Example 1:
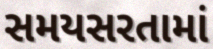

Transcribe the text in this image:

સમયસરતામાં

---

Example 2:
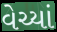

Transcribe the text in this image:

વેચ્યાં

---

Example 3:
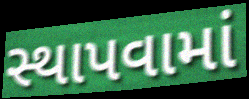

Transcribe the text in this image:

સ્થાપવામાં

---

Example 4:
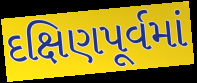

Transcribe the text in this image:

દક્ષિણપૂર્વમાં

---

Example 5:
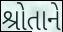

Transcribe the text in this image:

શ્રોતાને